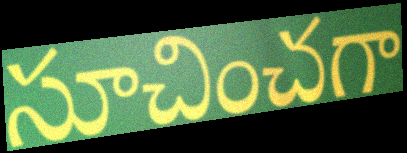
సూచించగా